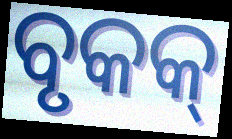
ବୃକକ୍